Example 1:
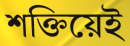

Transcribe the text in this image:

শক্তিয়েই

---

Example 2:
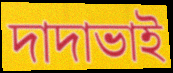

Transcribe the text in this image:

দাদাভাই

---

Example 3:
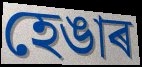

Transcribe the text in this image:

হেঙাৰ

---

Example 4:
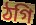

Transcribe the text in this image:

ঠগি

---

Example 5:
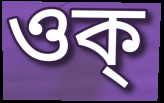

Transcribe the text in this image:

ওক্